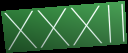
XXXII